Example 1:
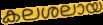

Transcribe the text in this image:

കലശലായ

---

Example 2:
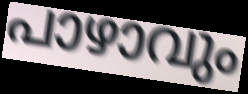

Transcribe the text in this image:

പാഴാവും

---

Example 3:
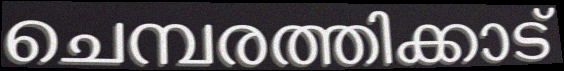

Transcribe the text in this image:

ചെമ്പരത്തിക്കാട്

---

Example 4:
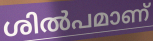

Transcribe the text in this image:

ശിൽപമാണ്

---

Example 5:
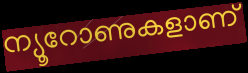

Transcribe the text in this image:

ന്യൂറോണുകളാണ്